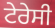
ਟੇਰੇਸੀ